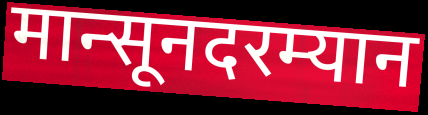
मान्सूनदरम्यान